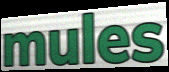
mules